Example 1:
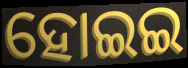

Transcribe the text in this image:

ହୋଇଇ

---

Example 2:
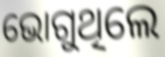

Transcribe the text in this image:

ଭୋଗୁଥିଲେ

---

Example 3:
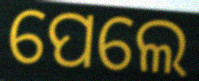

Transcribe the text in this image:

ପେଲେ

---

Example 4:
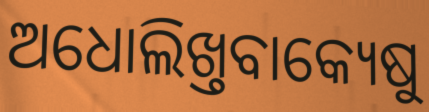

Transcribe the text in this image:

ଅଧୋଲିଖ୍ତବାକ୍ୟେଷୁ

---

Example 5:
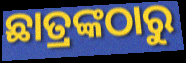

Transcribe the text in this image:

ଛାତ୍ରଙ୍କଠାରୁ